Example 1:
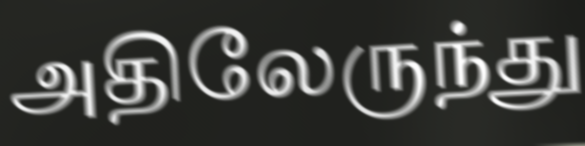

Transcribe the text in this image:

அதிலேருந்து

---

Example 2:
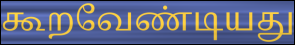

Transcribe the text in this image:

கூறவேண்டியது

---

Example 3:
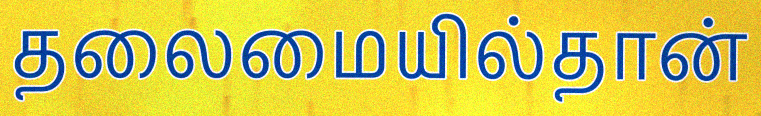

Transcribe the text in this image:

தலைமையில்தான்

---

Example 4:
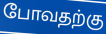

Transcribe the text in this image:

போவதற்கு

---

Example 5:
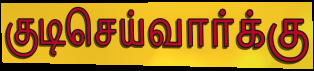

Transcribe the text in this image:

குடிசெய்வார்க்கு